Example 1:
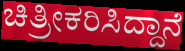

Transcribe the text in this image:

ಚಿತ್ರೀಕರಿಸಿದ್ದಾನೆ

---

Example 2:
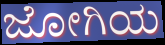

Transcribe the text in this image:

ಜೋಗಿಯ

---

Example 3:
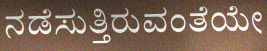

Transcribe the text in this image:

ನಡೆಸುತ್ತಿರುವಂತೆಯೇ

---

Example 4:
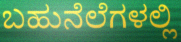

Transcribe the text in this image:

ಬಹುನೆಲೆಗಳಲ್ಲಿ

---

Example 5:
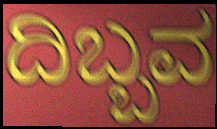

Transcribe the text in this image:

ದಿಬ್ಬವ